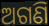
ଅଗଣି